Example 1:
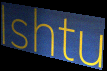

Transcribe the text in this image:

Ishtu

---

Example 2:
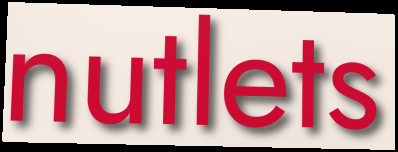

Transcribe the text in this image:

nutlets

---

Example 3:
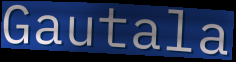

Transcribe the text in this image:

Gautala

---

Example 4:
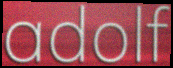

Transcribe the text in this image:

adolf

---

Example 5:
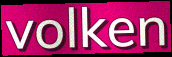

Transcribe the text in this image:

volken